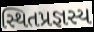
સ્થિતપ્રજ્ઞસ્ય